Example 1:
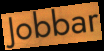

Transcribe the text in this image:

Jobbar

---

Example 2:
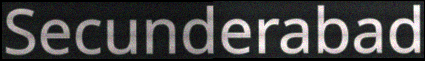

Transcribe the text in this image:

Secunderabad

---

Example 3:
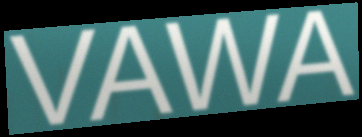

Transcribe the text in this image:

VAWA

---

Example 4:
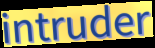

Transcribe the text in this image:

intruder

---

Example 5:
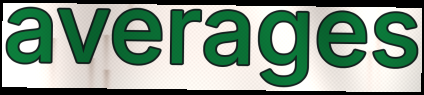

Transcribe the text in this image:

averages